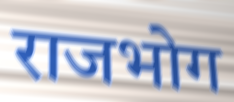
राजभोग